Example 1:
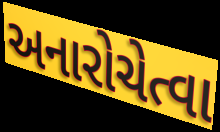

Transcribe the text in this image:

અનારોચેત્વા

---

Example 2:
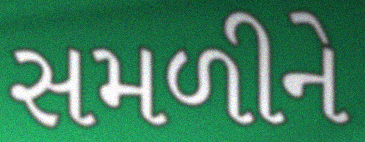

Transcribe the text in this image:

સમળીને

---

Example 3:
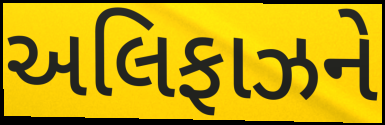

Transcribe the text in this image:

અલિફાઝને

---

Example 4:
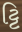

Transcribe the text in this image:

ટ્ટિ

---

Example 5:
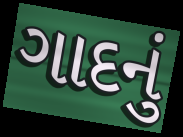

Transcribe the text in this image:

ગાદનું